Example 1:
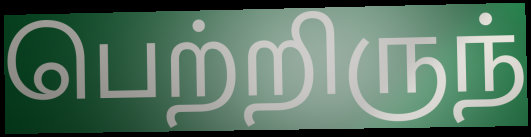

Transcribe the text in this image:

பெற்றிருந்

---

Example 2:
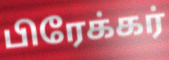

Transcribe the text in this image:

பிரேக்கர்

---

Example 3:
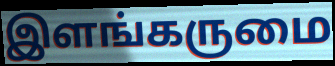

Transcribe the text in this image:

இளங்கருமை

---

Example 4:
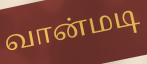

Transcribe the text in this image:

வான்மடி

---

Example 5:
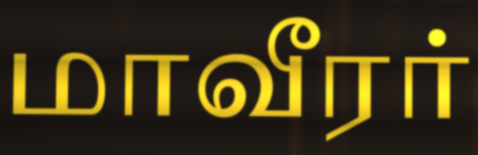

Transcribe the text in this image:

மாவீரர்